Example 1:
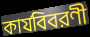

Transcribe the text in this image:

কার্যবিবরণী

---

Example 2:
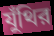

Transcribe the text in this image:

যুঁথির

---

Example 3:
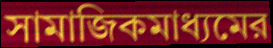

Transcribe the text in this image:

সামাজিকমাধ্যমের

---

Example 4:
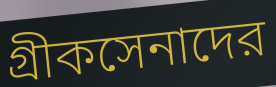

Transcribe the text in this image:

গ্রীকসেনাদের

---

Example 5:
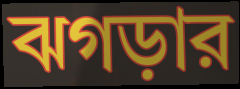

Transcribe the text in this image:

ঝগড়ার